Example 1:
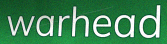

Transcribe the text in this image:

warhead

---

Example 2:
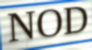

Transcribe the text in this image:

NOD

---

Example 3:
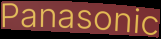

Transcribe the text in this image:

Panasonic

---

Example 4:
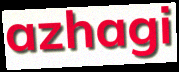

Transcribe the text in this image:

azhagi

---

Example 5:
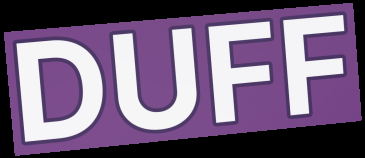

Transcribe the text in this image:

DUFF